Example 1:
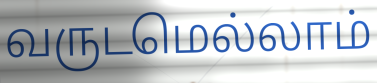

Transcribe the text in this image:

வருடமெல்லாம்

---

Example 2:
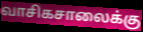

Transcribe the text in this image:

வாசிகசாலைக்கு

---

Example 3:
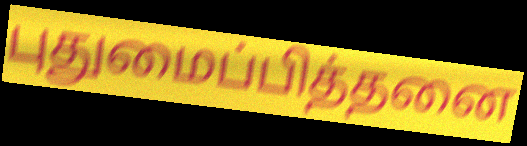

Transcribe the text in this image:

புதுமைப்பித்தனை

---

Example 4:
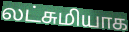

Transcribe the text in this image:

லட்சுமியாக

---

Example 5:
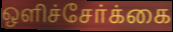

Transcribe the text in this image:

ஒளிச்சேர்க்கை